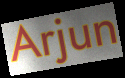
Arjun